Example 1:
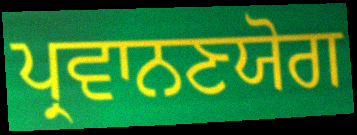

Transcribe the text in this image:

ਪ੍ਰਵਾਨਣਯੋਗ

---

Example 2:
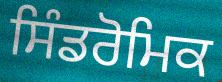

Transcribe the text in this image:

ਸਿੰਡਰੋਮਿਕ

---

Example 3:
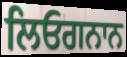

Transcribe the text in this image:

ਲਿਓਗਨਾਨ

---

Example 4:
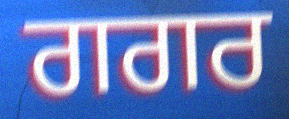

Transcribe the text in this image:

ਗਗਰ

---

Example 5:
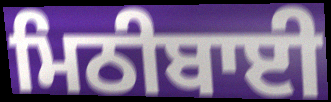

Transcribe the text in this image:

ਮਿਠੀਬਾਈ